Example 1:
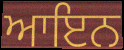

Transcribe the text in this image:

ਆਇਨ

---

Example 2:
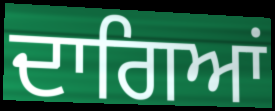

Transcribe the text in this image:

ਦਾਗਿਆਂ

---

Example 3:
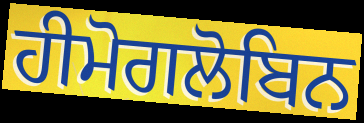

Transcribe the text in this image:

ਹੀਮੋਗਲੋਬਿਨ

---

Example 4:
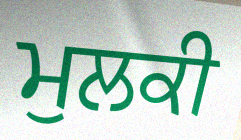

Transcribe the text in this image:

ਮੁਲਕੀ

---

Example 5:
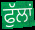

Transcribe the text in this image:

ਫੁੱਲਾਂ